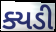
ક્યડી